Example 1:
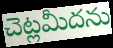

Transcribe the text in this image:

చెట్లమీదను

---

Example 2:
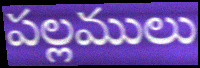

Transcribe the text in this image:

పల్లములు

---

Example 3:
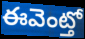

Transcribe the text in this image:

ఈవెంట్తో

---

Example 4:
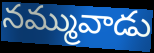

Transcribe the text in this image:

నమ్మువాడు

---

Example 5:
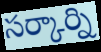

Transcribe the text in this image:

సర్కార్ని